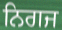
ਨਿਗਜ